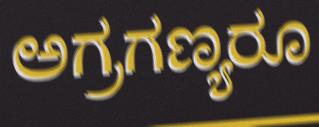
ಅಗ್ರಗಣ್ಯರೂ